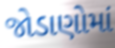
જોડાણોમાં